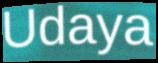
Udaya